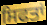
ਸਿਫਤਾਂ